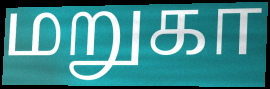
மறுகா